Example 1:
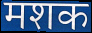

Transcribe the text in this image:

मशक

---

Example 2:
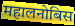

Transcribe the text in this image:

महालनोबिस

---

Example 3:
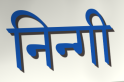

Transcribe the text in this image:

निन्गी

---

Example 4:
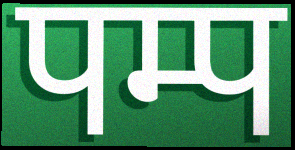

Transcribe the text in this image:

पम्प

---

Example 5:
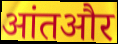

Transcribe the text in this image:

आंतऔर